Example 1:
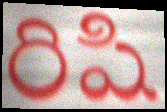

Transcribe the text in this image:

రిషి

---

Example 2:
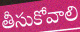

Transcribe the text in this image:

తీసుకోవాలి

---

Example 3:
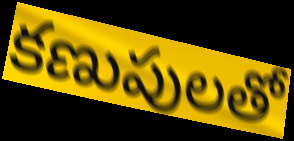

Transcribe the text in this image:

కణుపులతో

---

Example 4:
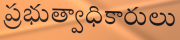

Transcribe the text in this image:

ప్రభుత్వాధికారులు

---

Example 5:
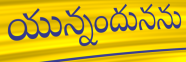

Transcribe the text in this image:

యున్నందునను